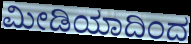
ಮೀಡಿಯಾದಿಂದ